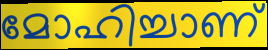
മോഹിച്ചാണ്